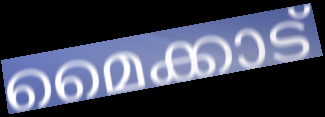
മൈക്കാട്